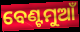
ବେଣ୍ଟମୁଆଁ